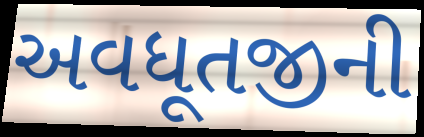
અવધૂતજીની